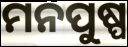
ମନପୁଷ୍ପ